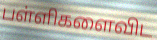
பள்ளிகளைவிட